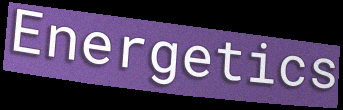
Energetics